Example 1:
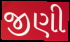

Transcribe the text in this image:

જીણી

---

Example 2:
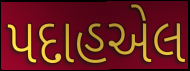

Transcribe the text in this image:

પદાહએલ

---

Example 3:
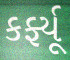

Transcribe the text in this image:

કર્ફ્યૂ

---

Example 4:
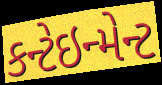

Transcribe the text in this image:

કન્ટેઇન્મેન્ટ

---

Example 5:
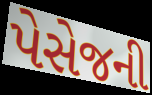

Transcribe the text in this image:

પેસેજની